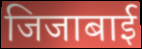
जिजाबाई